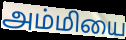
அம்மியை